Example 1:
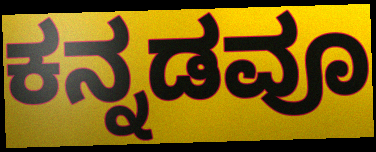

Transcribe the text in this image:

ಕನ್ನಡವೂ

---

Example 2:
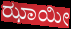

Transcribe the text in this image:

ಝಾಯೀ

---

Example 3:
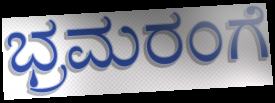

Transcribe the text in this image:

ಭ್ರಮರಂಗೆ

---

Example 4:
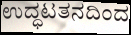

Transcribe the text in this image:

ಉದ್ಧಟತನದಿಂದ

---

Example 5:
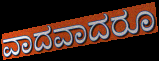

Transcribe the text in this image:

ವಾದವಾದರೂ